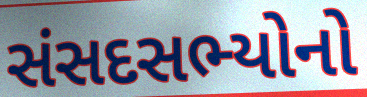
સંસદસભ્યોનો